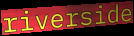
riverside